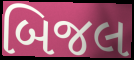
બિજલ